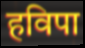
हविपा